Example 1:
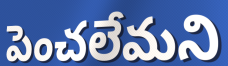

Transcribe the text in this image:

పెంచలేమని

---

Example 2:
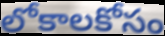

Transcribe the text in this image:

లోకాలకోసం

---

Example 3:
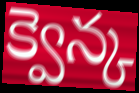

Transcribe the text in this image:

క్వెన్క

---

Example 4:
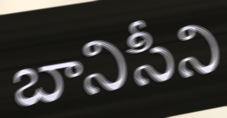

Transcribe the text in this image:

బానిసీని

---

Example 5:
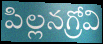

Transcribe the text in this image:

పిల్లనగ్రోవి